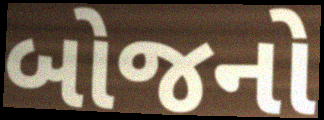
બોજનો